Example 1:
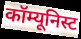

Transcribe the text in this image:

कॉम्यूनिस्ट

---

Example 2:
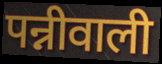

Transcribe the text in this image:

पन्नीवाली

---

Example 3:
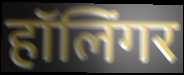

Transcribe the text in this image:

हॉलिंगर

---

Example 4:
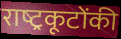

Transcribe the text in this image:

राष्ट्रकूटोंकी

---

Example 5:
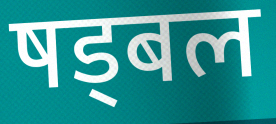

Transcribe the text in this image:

षड्बल